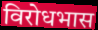
विरोधभास